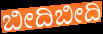
ಬೀದಿಬೀದಿ